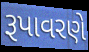
રૂપાવરણે